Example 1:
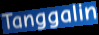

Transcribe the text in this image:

Tanggalin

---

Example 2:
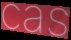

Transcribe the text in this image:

cas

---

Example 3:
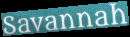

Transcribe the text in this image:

Savannah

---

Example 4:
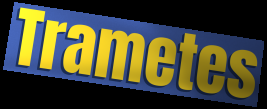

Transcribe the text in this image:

Trametes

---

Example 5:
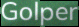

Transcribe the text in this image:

Golper